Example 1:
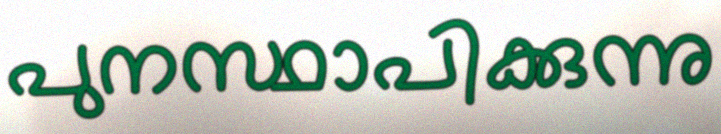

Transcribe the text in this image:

പുനസ്ഥാപിക്കുന്നു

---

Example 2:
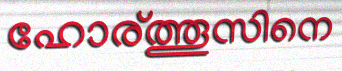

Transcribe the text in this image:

ഹോര്ത്തൂസിനെ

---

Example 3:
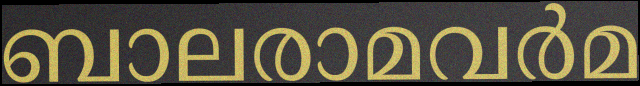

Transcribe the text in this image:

ബാലരാമവർമ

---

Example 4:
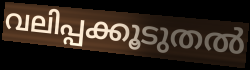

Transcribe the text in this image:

വലിപ്പക്കൂടുതൽ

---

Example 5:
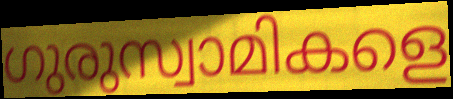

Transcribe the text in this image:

ഗുരുസ്വാമികളെ